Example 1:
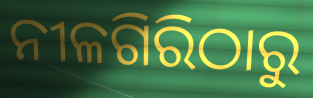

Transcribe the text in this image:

ନୀଳଗିରିଠାରୁ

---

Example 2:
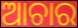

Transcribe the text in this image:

ଆଚାର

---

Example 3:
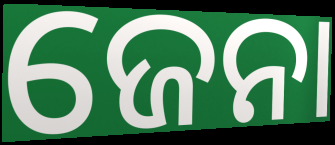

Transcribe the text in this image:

ଜେନା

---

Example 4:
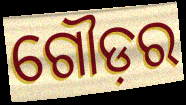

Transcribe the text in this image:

ଗୌଡ଼ର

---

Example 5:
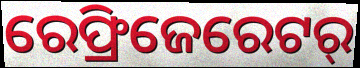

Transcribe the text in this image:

ରେଫ୍ରିଜେରେଟର୍